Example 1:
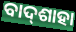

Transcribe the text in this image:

ବାଦ୍‌ଶାହା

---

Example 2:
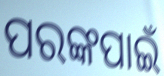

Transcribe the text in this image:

ପରଙ୍କପାଇଁ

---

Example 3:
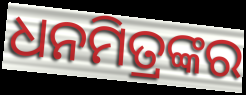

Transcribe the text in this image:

ଧନମିତ୍ରଙ୍କର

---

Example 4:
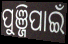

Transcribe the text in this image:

ପୁଞ୍ଜିପାଇଁ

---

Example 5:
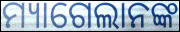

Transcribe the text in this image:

ମ୍ୟାଗେଲାନଙ୍କ